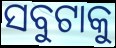
ସବୁଟାକୁ